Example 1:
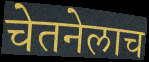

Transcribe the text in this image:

चेतनेलाच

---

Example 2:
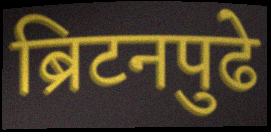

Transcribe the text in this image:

ब्रिटनपुढे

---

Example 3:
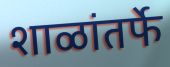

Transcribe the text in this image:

शाळांतर्फे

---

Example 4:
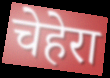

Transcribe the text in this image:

चेहेरा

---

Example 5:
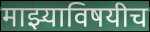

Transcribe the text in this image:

माझ्याविषयीच